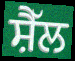
ਸ਼ੈੱਲ